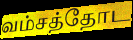
வம்சத்தோட